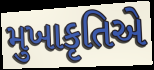
મુખાકૃતિએ